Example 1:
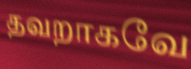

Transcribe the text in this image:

தவறாகவே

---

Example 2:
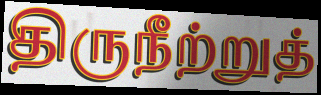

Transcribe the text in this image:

திருநீற்றுத்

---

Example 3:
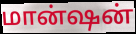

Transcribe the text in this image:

மான்ஷன்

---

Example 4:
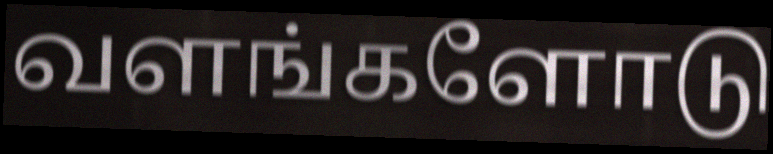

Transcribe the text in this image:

வளங்களோடு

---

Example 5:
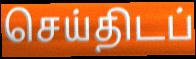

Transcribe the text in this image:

செய்திடப்